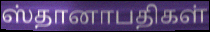
ஸ்தானாபதிகள்